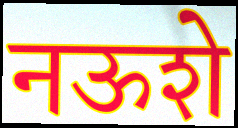
नऊशे